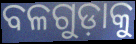
ବଳଗୁଡ଼ାକୁ